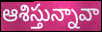
ఆశిస్తున్నావా